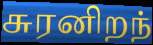
சுரனிறந்